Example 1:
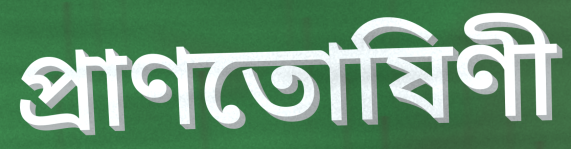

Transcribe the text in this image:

প্ৰাণতোষিণী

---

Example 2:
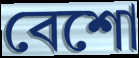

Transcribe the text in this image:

বেশো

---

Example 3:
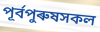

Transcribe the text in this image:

পূৰ্বপুৰুষসকল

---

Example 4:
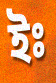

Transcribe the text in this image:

ইঃ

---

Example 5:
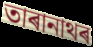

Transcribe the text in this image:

তাৰানাথৰ